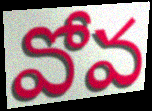
వోవ